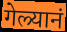
गेल्यानं